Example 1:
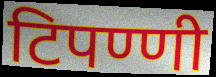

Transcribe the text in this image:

टिपण्णी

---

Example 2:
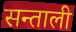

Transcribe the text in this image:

सन्ताली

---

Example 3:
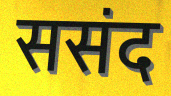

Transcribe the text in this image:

ससंद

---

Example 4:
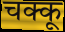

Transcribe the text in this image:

चक्कू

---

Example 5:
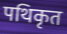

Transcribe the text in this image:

पथिकृत